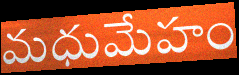
మధుమేహం